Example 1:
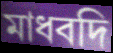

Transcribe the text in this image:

মাধবদি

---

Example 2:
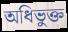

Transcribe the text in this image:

অধিভুক্ত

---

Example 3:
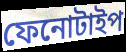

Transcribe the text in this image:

ফেনোটাইপ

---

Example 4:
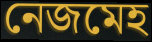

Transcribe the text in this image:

নেজমেহ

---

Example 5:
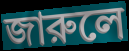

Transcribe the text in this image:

জারুলে